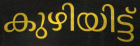
കുഴിയിട്ട്